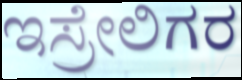
ಇಸ್ರೇಲಿಗರ